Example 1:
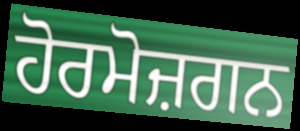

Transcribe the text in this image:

ਹੋਰਮੋਜ਼ਗਨ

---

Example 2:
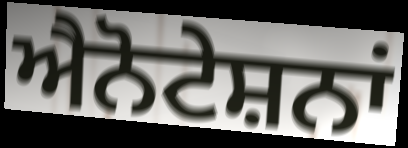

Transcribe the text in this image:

ਐਨੋਟੇਸ਼ਨਾਂ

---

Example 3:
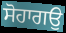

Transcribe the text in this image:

ਸੋਹਾਗਉ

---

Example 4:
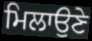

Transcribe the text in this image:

ਮਿਲਾਉਣੇ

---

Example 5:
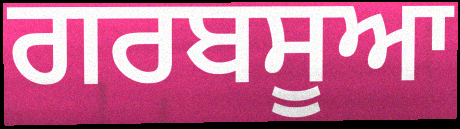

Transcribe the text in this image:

ਗਰਬਸੂਆ